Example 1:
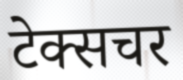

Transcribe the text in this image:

टेक्सचर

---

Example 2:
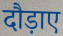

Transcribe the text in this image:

दौड़ाए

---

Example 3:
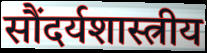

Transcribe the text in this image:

सौंदर्यशास्त्रीय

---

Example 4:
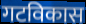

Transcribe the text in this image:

गटविकास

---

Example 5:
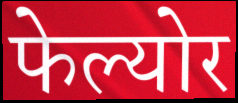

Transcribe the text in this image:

फेल्योर